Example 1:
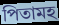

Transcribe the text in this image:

পিতামহ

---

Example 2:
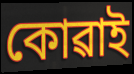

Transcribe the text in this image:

কোৱাই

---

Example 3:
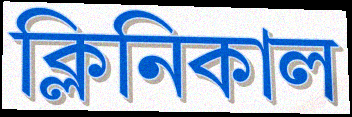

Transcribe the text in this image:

ক্লিনিকাল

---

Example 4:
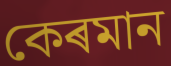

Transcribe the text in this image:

কেৰমান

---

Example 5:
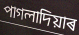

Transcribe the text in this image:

পাগলাদিয়াৰ